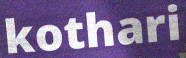
kothari